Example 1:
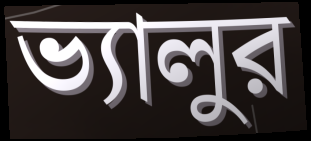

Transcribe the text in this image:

ভ্যালুর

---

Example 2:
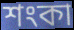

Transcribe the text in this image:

শংকা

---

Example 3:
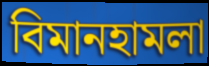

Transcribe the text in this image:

বিমানহামলা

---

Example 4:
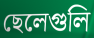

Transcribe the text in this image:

ছেলেগুলি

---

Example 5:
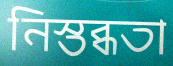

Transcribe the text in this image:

নিস্তব্ধতা